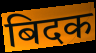
बिदक